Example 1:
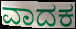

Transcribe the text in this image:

ವಾದಕ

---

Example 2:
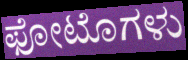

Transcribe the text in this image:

ಫೋಟೊಗಳು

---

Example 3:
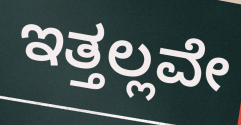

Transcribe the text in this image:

ಇತ್ತಲ್ಲವೇ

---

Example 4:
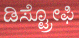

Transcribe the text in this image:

ಡಿಸ್ಟ್ರೋಫಿ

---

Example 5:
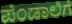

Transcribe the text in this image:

ಪೆಂಡಾಲಿಗೆ